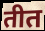
तीत